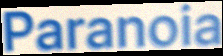
Paranoia